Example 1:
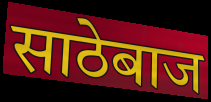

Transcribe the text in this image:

साठेबाज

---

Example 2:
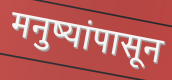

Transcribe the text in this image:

मनुष्यांपासून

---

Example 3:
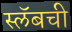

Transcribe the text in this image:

स्लॅबची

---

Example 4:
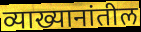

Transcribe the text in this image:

व्याख्यानांतील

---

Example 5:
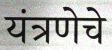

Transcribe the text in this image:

यंत्रणेचे